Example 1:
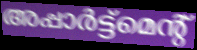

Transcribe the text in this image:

അപ്പാർട്ട്മെന്റ്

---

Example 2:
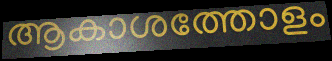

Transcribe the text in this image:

ആകാശത്തോളം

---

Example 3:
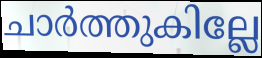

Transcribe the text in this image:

ചാർത്തുകില്ലേ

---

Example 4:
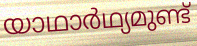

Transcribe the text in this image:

യാഥാർഥ്യമുണ്ട്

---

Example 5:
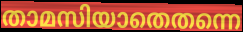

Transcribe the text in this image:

താമസിയാതെതന്നെ